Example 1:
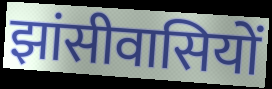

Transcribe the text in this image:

झांसीवासियों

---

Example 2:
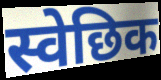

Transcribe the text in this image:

स्वेछिक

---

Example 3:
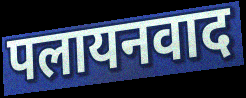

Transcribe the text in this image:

पलायनवाद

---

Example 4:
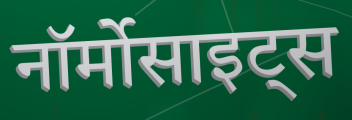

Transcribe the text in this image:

नॉर्मोसाइट्स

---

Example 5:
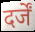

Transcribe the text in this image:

दर्जें